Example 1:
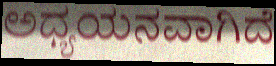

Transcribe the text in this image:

ಅಧ್ಯಯನವಾಗಿದೆ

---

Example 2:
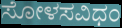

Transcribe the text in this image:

ಸೋಳಸವಿಧಂ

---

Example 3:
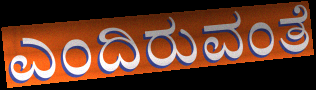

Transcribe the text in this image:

ಎಂದಿರುವಂತೆ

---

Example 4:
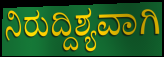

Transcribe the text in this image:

ನಿರುದ್ದಿಶ್ಯವಾಗಿ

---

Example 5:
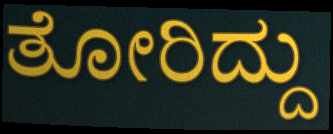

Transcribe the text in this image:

ತೋರಿದ್ದು